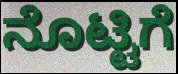
ನೊಟ್ಟಿಗೆ